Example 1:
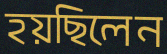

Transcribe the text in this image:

হয়ছিলেন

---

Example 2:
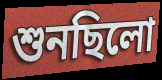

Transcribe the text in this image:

শুনছিলো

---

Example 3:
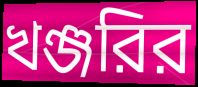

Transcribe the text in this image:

খঞ্জরির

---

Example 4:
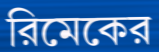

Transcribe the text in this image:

রিমেকের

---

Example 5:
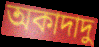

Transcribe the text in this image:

অকাদাদু